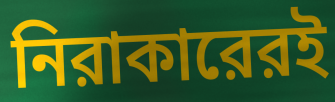
নিরাকারেরই